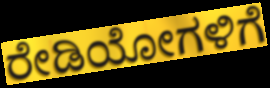
ರೇಡಿಯೋಗಳಿಗೆ